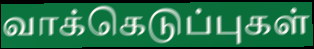
வாக்கெடுப்புகள்